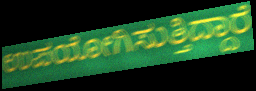
ಉಪಯೋಗಿಸುತ್ತಿದ್ದಾರೆ